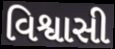
વિશ્વાસી